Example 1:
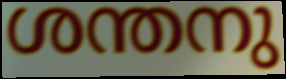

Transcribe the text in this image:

ശന്തനു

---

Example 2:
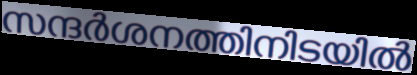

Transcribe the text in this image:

സന്ദർശനത്തിനിടയിൽ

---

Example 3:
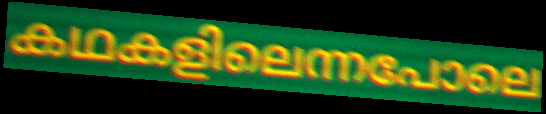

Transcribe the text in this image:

കഥകളിലെന്നപോലെ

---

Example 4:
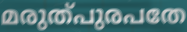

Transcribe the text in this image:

മരുത്പുരപതേ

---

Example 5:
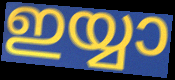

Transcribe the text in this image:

ഇയ്യാ